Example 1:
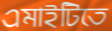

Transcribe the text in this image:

এমাইটিতে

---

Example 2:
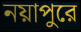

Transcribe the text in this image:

নয়াপুরে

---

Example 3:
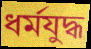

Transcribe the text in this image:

ধর্মযুদ্ধ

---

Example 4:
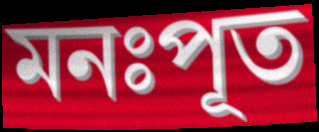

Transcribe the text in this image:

মনঃপূত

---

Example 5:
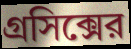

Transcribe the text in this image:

গ্রসিক্সের